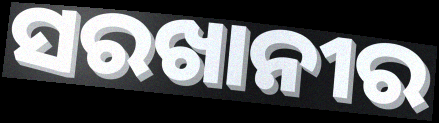
ସରଖାନୀର